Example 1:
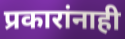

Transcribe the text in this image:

प्रकारांनाही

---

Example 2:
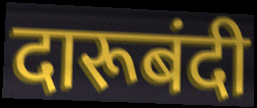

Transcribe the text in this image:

दारूबंदी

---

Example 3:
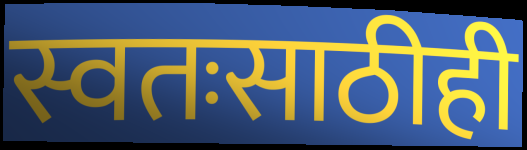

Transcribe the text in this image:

स्वतःसाठीही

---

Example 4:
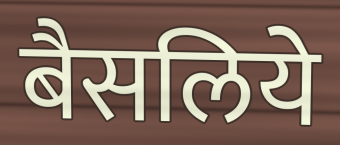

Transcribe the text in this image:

बैसलिये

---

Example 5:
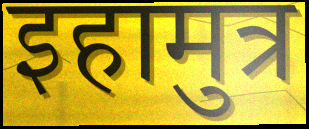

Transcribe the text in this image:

इहामुत्र